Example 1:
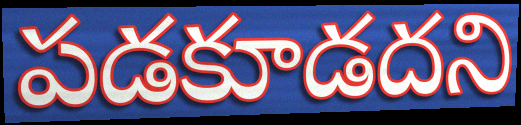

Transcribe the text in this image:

పడకూడదని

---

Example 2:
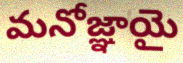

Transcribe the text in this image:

మనోజ్ఞాయై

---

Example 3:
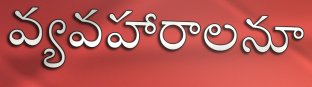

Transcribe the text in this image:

వ్యవహారాలనూ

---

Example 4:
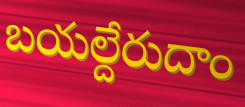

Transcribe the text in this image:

బయల్దేరుదాం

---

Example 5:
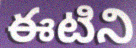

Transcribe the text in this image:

ఈటిని